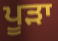
ਪੂੜਾ